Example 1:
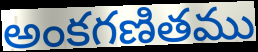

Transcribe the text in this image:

అంకగణితము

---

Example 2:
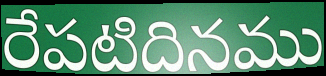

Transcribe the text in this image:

రేపటిదినము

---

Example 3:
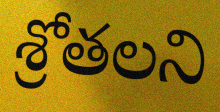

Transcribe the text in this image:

శ్రోతలని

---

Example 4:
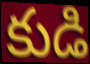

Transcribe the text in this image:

కుడి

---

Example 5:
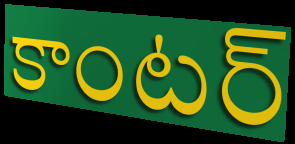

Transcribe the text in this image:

కాంటర్